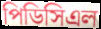
পিডিসিএল